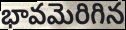
భావమెరిగిన